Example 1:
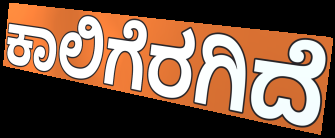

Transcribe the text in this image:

ಕಾಲಿಗೆರಗಿದೆ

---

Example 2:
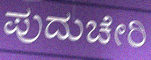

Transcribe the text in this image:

ಪುದುಚೇರಿ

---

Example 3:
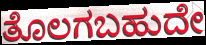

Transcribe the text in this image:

ತೊಲಗಬಹುದೇ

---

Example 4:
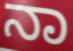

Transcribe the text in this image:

ನಾ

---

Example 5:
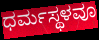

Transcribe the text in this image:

ಧರ್ಮಸ್ಥಳವೂ